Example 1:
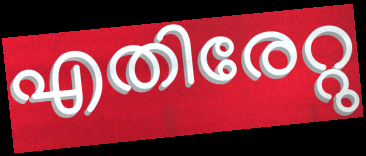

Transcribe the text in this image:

എതിരേറ്റു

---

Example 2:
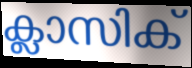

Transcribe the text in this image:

ക്ലാസിക്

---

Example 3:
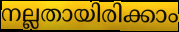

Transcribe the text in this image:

നല്ലതായിരിക്കാം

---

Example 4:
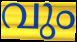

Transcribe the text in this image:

വും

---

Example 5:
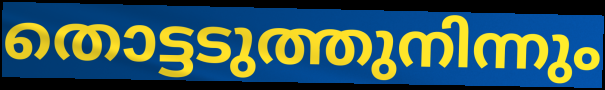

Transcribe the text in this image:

തൊട്ടടുത്തുനിന്നും